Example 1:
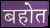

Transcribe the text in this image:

बहोत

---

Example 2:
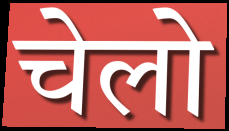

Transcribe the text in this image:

चेलो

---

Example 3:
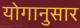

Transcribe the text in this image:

योगानुसार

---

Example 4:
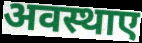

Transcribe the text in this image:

अवस्थाए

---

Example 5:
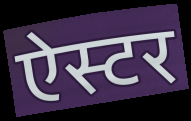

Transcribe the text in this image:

ऐस्टर